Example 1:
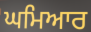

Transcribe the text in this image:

ਘਮਿਆਰ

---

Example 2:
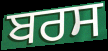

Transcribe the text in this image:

ਬਰਸ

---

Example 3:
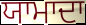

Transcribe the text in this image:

ਯਾਮਾਦਾ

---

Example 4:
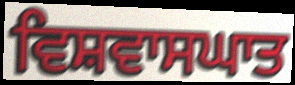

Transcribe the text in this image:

ਵਿਸ਼ਵਾਸਘਾਤ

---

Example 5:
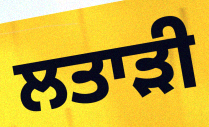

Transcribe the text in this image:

ਲਤਾੜੀ